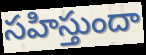
సహిస్తుందా